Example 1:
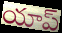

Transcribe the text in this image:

యాప్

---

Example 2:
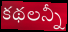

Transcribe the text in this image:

కథలన్నీ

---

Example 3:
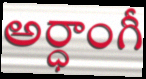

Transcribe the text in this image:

అర్ధాంగీ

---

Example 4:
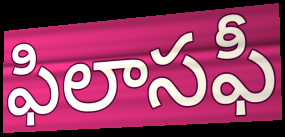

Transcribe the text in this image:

ఫిలాసఫీ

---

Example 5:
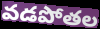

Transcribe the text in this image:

వడపోతల